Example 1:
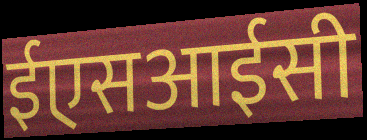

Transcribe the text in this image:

ईएसआईसी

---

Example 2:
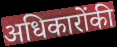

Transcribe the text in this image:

अधिकारोंकी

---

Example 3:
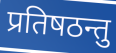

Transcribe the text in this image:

प्रतिषठन्तु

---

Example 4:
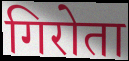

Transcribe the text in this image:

गिरोता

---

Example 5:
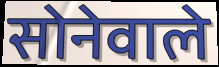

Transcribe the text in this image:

सोनेवाले